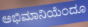
ಅಭಿಮಾನಿಯೆಂದೂ